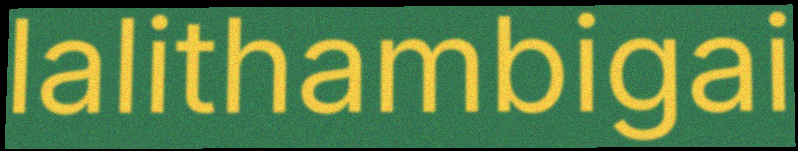
lalithambigai